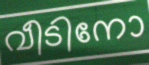
വീടിനോ